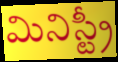
మినిస్ట్రీ